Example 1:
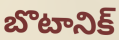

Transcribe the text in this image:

బొటానిక్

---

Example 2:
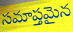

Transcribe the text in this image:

సమాప్తమైన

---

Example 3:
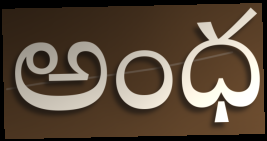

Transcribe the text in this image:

అంధ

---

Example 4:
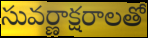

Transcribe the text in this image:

సువర్ణాక్షరాలతో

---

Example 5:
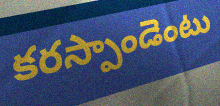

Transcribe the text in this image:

కరస్పాండెంటు